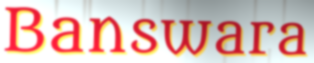
Banswara